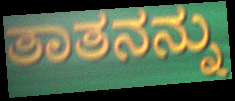
ತಾತನನ್ನು